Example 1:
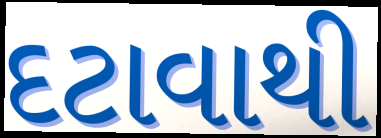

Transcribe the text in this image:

દટાવાથી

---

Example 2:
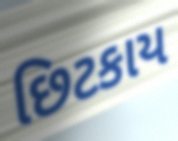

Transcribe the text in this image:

છિટકાય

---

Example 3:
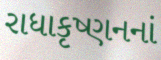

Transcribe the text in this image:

રાધાકૃષ્ણનનાં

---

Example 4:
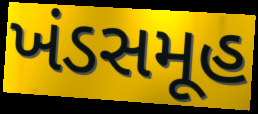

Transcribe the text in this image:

ખંડસમૂહ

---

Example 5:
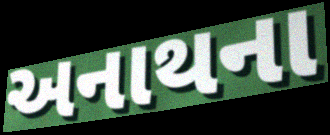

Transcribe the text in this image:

અનાથના